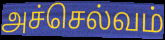
அச்செல்வம்